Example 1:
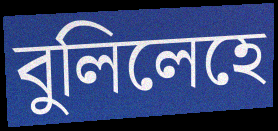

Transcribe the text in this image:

বুলিলেহে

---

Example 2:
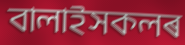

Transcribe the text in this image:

বালাইসকলৰ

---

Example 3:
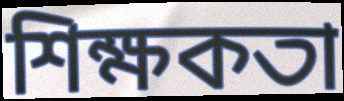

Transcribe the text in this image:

শিক্ষকতা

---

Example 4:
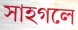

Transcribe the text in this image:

সাহগলে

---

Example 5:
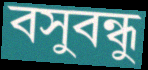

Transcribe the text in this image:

বসুবন্ধু